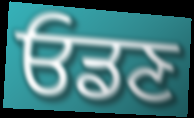
ਓਡਣ